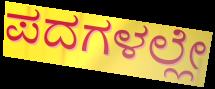
ಪದಗಳಲ್ಲೇ